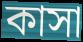
কাসা